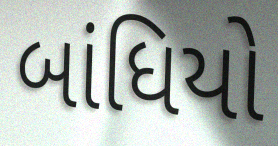
બાંધિયો